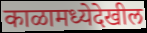
काळामध्येदेखील